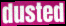
dusted